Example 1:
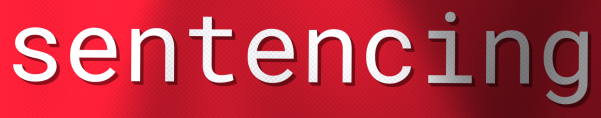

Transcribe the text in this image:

sentencing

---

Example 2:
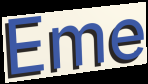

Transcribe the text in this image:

Eme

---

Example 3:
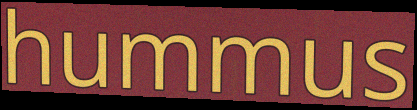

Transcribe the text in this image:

hummus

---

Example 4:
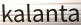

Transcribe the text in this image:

kalanta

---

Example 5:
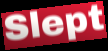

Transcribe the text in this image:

Slept